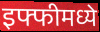
इफ्फीमध्ये